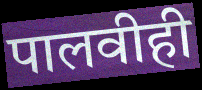
पालवीही